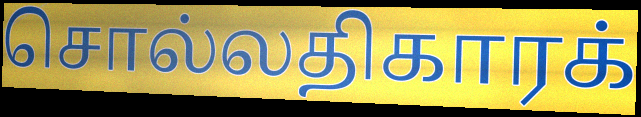
சொல்லதிகாரக்